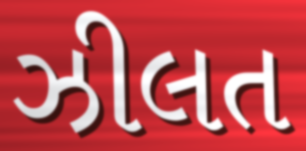
ઝીલત